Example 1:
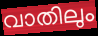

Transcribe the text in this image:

വാതിലും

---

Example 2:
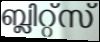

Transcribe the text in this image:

ബ്ലിറ്റ്സ്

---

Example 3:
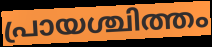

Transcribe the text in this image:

പ്രായശ്ചിത്തം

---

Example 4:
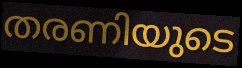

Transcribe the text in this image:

തരണിയുടെ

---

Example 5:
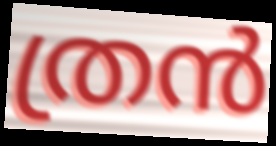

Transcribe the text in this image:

ത്രൻ